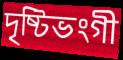
দৃষ্টিভংগী